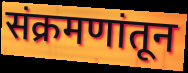
संक्रमणांतून